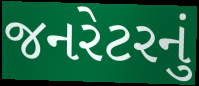
જનરેટરનું